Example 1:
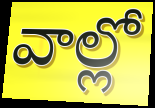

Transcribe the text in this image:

వాల్లో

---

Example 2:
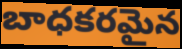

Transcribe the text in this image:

బాధకరమైన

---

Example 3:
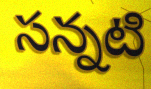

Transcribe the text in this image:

సన్నటి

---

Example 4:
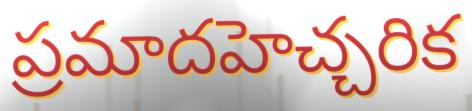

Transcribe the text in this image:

ప్రమాదహెచ్చరిక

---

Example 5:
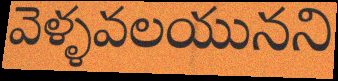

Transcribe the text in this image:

వెళ్ళవలయునని